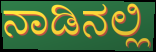
ನಾಡಿನಲ್ಲಿ